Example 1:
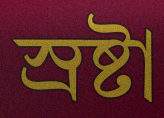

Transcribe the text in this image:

স্রষ্টা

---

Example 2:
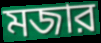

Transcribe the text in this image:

মজার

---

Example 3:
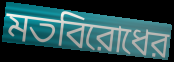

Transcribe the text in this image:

মতবিরোধের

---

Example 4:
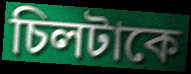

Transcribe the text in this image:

চিলটাকে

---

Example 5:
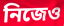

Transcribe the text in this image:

নিজেও